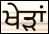
ਖੇੜਾਂ